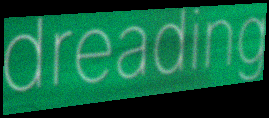
dreading